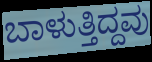
ಬಾಳುತ್ತಿದ್ದವು